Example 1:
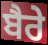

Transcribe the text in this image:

ਬੈਰੇ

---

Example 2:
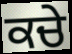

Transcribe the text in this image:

ਕਚੇ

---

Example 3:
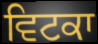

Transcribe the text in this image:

ਵਿਟਕਾ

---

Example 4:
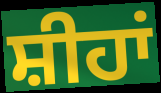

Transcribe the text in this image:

ਸ਼ੀਹਾਂ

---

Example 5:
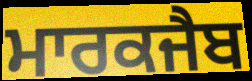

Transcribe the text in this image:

ਮਾਰਕਜੈਬ